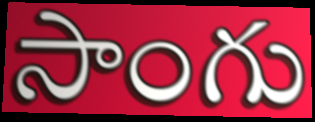
సాంగు